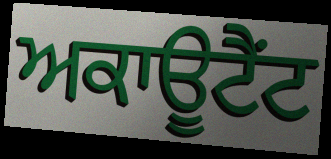
ਅਕਾਊਟੈਂਟ